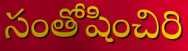
సంతోషించిరి